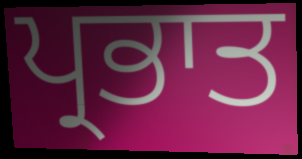
ਪ੍ਰਭਾਤ